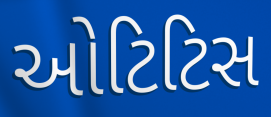
ઓટિટિસ